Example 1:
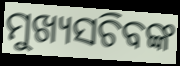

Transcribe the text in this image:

ମୁଖ୍ୟସଚିବଙ୍କ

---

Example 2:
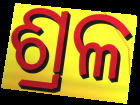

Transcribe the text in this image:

ଶ୍ରଳ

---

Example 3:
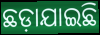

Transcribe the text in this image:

ଛଡ଼ାଯାଇଛି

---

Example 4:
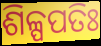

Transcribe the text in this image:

ଶିଳ୍ପପତିଃ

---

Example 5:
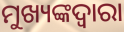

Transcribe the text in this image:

ମୁଖ୍ୟଙ୍କଦ୍ଵାରା